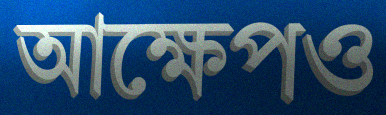
আক্ষেপও